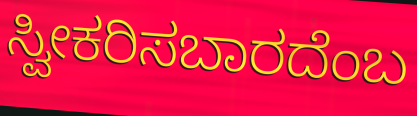
ಸ್ವೀಕರಿಸಬಾರದೆಂಬ